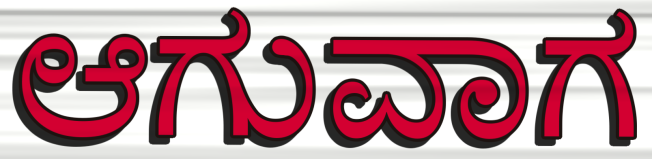
ಆಗುವಾಗ